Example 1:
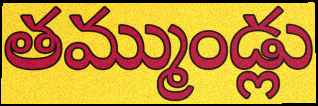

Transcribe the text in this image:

తమ్ముండ్లు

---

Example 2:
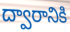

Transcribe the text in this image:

ద్వారానికి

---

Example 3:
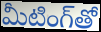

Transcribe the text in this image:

మీటింగ్‌తో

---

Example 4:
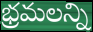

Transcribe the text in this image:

భ్రమలన్ని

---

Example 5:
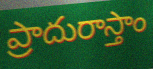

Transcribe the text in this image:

ప్రాదురాస్తాం